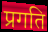
प्रगति